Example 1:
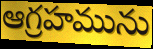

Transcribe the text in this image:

ఆగ్రహమును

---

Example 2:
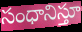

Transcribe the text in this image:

సంధానిస్తూ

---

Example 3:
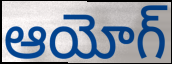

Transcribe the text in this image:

ఆయోగ్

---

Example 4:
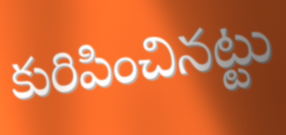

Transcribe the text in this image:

కురిపించినట్టు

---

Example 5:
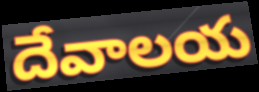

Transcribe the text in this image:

దేవాలయ